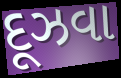
દૂઝવા